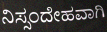
ನಿಸ್ಸಂದೇಹವಾಗಿ